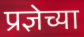
प्रज्ञेच्या